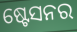
ଷ୍ଟେସନର